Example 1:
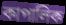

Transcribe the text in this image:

কাপালিক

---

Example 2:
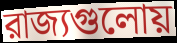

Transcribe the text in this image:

রাজ্যগুলোয়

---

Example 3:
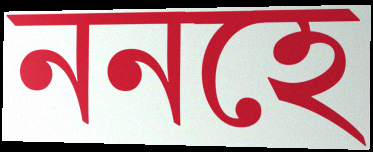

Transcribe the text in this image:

ননহে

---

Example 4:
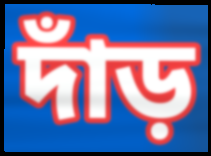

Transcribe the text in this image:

দাঁড়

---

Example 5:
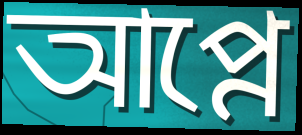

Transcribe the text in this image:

আপ্নে